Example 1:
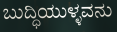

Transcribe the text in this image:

ಬುದ್ಧಿಯುಳ್ಳವನು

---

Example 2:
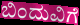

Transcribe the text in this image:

ಬಿಂದುವಿಗೆ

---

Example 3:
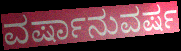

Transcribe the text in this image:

ವರ್ಷಾನುವರ್ಷ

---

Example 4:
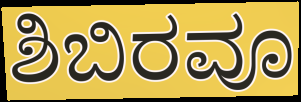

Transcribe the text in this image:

ಶಿಬಿರವೂ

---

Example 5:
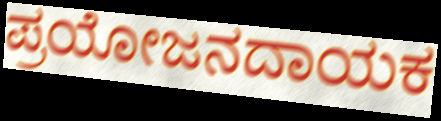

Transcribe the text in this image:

ಪ್ರಯೋಜನದಾಯಕ